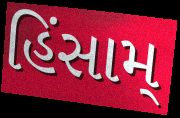
હિંસામ્